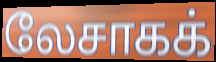
லேசாகக்